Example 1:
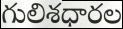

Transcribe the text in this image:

గులిశధారల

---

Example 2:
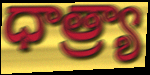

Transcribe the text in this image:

ధాత్ర్యా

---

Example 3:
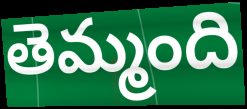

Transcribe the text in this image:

తెమ్మంది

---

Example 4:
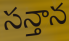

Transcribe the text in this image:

సన్తాన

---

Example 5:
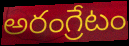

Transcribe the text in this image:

అరంగ్రేటం